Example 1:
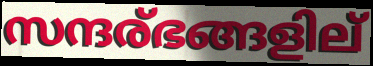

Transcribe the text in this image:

സന്ദര്ഭങ്ങളില്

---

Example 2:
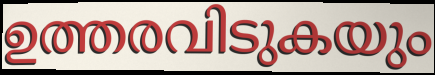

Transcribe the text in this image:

ഉത്തരവിടുകയും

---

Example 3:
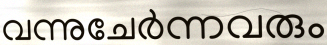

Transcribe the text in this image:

വന്നുചേർന്നവരും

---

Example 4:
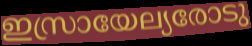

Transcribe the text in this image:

ഇസ്രായേല്യരോടു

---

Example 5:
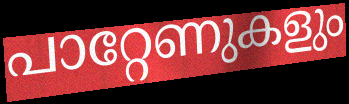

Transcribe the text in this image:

പാറ്റേണുകളും